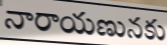
నారాయణునకు